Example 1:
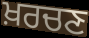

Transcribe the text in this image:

ਖ਼ਰਚਣ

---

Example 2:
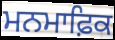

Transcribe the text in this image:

ਮਨਮਾਫ਼ਿਕ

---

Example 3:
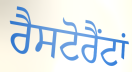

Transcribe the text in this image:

ਰੈਸਟੋਰੈਂਟਾਂ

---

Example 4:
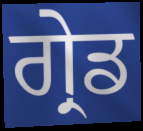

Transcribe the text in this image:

ਗ੍ਰੇਡ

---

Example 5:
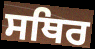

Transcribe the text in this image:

ਸਥਿਰ